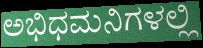
ಅಭಿಧಮನಿಗಳಲ್ಲಿ